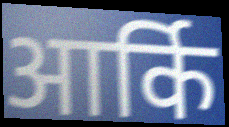
आर्कि